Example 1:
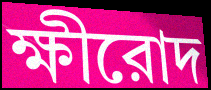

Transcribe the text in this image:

ক্ষীরোদ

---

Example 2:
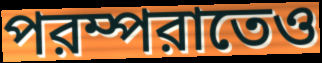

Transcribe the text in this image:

পরম্পরাতেও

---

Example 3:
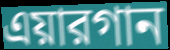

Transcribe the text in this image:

এয়ারগান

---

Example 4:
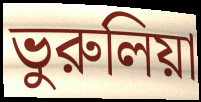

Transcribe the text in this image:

ভুরুলিয়া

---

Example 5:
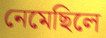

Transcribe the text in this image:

নেমেছিলে